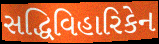
સદ્ધિવિહારિકેન